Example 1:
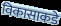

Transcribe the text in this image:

विकासाकडे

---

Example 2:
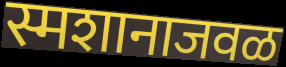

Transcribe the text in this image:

स्मशानाजवळ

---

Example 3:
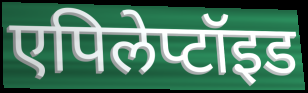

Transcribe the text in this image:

एपिलेप्टॉइड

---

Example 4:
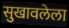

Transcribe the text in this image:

सुखावलेला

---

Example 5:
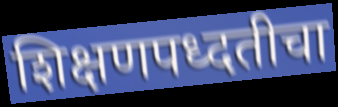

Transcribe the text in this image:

शिक्षणपध्दतीचा